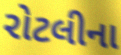
રોટલીના